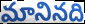
మానినది